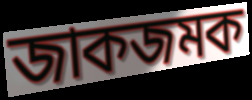
জাকজমক